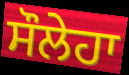
ਸੌਲੇਹਾ